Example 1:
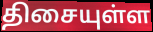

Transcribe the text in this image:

திசையுள்ள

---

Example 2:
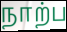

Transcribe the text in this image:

நாற்ப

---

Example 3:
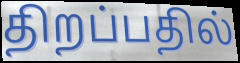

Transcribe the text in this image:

திறப்பதில்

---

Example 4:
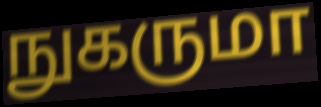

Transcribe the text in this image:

நுகருமா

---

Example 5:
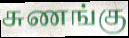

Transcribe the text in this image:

சுணங்கு